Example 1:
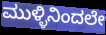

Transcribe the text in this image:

ಮುಳ್ಳಿನಿಂದಲೇ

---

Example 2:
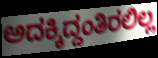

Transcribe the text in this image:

ಅದಕ್ಕಿದ್ದಂತಿರಲಿಲ್ಲ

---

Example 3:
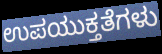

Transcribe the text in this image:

ಉಪಯುಕ್ತತೆಗಳು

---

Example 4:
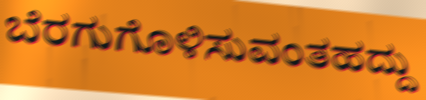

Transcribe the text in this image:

ಬೆರಗುಗೊಳಿಸುವಂತಹದ್ದು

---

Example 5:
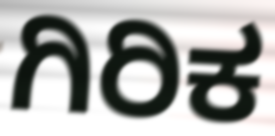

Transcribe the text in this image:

ಗಿರಿಕ